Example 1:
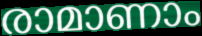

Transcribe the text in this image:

രാമാണാം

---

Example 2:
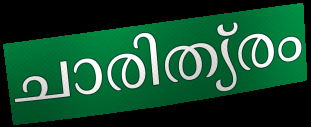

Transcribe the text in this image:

ചാരിത്യ്രം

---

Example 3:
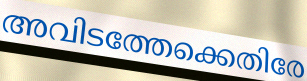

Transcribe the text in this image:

അവിടത്തേക്കെതിരേ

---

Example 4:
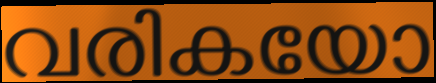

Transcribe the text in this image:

വരികയോ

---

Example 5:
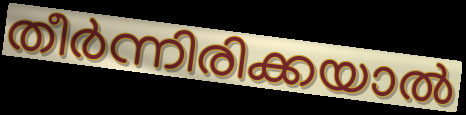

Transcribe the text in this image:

തീർന്നിരിക്കയാൽ